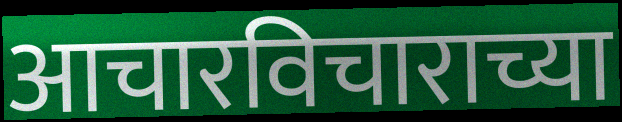
आचारविचाराच्या